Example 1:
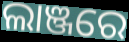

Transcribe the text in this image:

ଲାଞ୍ଜରେ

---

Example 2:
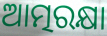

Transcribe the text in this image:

ଆତ୍ମରକ୍ଷା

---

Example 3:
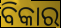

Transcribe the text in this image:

ବିକାର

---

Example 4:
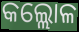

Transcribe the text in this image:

କଲ୍ଲୋଳ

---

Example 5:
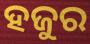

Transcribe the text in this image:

ହଜୁର